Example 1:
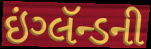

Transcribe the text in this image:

ઇંગ્લૅન્ડની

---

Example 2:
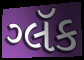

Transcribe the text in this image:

ગ્લૅક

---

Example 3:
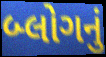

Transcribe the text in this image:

બ્લોગનું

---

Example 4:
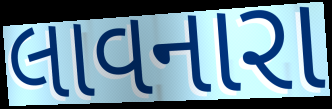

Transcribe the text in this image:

લાવનારા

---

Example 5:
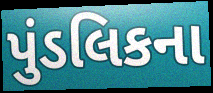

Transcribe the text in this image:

પુંડલિકના